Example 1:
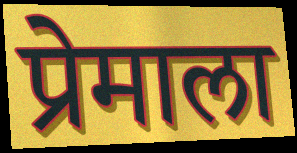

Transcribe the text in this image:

प्रेमाला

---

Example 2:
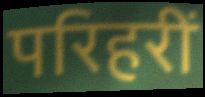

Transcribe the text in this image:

परिहरीं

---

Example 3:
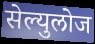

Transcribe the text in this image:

सेल्युलोज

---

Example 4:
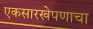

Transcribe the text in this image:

एकसारखेपणाचा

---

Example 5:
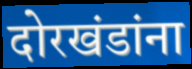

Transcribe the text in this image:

दोरखंडांना